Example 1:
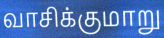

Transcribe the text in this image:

வாசிக்குமாறு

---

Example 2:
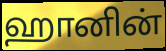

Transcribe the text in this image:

ஹானின்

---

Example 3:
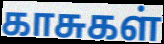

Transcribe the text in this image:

காசுகள்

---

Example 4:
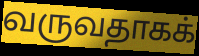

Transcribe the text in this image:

வருவதாகக்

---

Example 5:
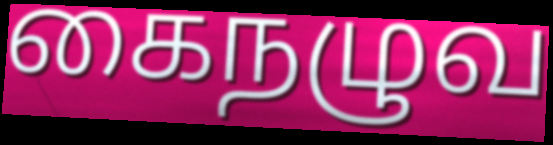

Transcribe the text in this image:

கைநழுவ